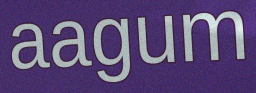
aagum